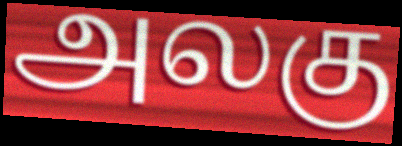
அலகு